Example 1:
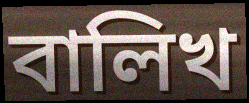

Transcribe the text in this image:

বালিখ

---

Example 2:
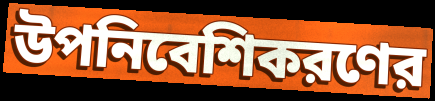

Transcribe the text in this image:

উপনিবেশিকরণের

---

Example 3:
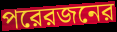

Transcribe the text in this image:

পরেরজনের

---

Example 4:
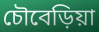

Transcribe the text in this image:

চৌবেড়িয়া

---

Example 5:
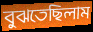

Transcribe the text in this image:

বুঝতেছিলাম